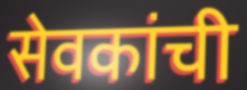
सेवकांची